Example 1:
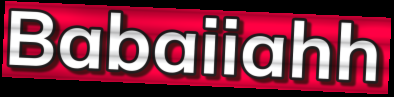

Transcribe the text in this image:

Babaiiahh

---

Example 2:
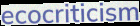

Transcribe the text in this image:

ecocriticism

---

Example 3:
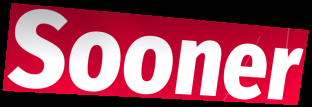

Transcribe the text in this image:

Sooner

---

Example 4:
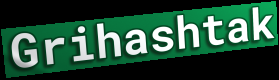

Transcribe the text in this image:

Grihashtak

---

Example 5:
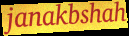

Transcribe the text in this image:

janakbshah